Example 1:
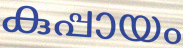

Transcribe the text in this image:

കുപ്പായം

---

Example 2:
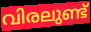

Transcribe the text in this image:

വിരലുണ്ട്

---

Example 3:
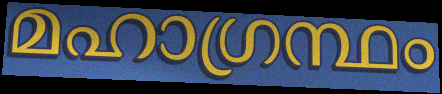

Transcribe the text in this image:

മഹാഗ്രന്ഥം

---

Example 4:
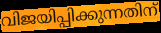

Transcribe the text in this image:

വിജയിപ്പിക്കുന്നതിന്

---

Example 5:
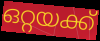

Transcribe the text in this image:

ഒറ്റയക്ക്